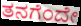
ತನಗೆಂದೇ